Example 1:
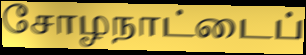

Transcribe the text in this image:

சோழநாட்டைப்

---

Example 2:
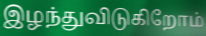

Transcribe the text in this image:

இழந்துவிடுகிறோம்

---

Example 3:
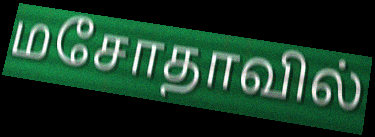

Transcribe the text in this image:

மசோதாவில்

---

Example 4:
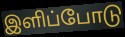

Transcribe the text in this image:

இளிப்போடு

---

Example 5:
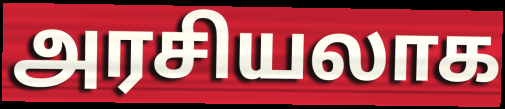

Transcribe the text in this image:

அரசியலாக